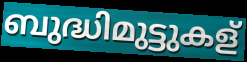
ബുദ്ധിമുട്ടുകള്